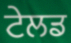
ਟੇਲਡ